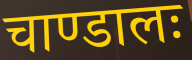
चाण्डालः